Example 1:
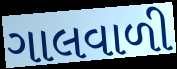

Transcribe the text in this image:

ગાલવાળી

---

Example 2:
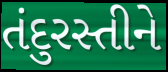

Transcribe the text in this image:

તંદુરસ્તીને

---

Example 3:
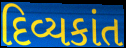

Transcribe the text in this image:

દિવ્યકાંત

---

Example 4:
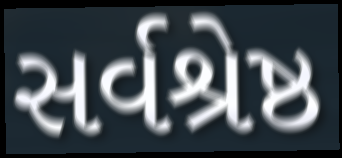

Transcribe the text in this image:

સર્વશ્રેષ્ઠ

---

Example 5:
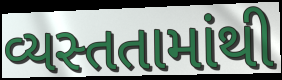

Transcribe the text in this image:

વ્યસ્તતામાંથી